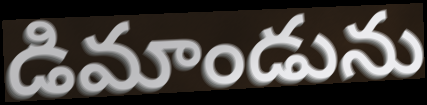
డిమాండును